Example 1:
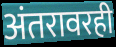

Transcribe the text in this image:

अंतरावरही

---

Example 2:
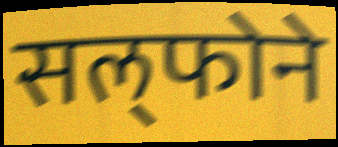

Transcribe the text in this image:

सल्फोने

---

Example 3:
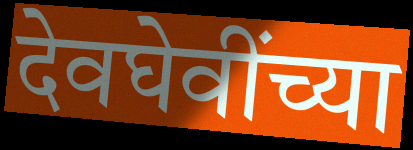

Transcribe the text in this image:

देवघेवींच्या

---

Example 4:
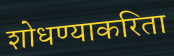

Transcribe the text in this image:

शोधण्याकरिता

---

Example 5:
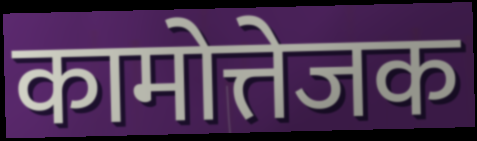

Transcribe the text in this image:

कामोत्तेजक